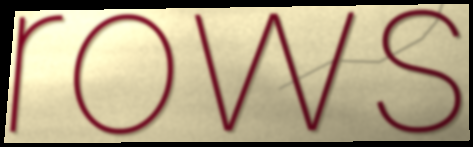
rows